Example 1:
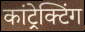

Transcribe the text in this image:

कांट्रेक्टिंग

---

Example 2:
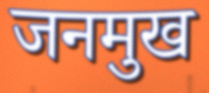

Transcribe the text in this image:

जनमुख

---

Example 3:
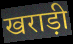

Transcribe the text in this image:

खराड़ी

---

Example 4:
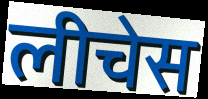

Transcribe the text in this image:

लीचेस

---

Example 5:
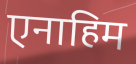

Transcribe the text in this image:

एनाहिम